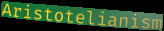
Aristotelianism